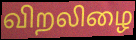
விறலிழை